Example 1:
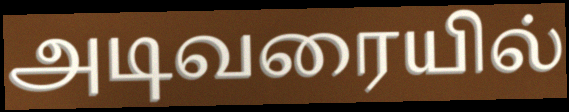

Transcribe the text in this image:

அடிவரையில்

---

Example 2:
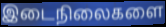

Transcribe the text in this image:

இடைநிலைகளை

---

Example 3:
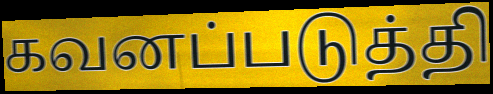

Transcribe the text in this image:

கவனப்படுத்தி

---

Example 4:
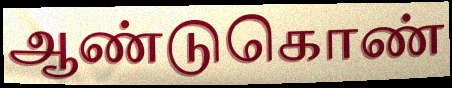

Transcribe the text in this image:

ஆண்டுகொண்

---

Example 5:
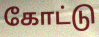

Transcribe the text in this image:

கோட்டு